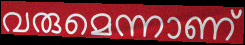
വരുമെന്നാണ്